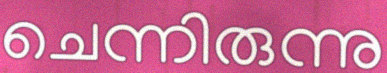
ചെന്നിരുന്നു